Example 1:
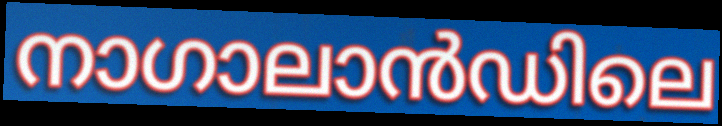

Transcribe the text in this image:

നാഗാലാൻഡിലെ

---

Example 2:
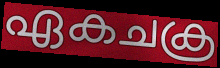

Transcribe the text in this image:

ഏകചക്ര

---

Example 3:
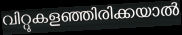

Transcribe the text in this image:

വിറ്റുകളഞ്ഞിരിക്കയാൽ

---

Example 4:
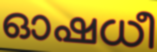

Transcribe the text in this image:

ഓഷധീ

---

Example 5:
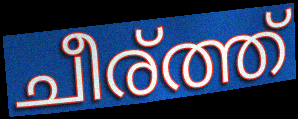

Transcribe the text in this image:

ചീര്ത്ത്